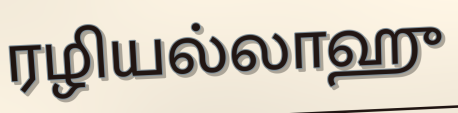
ரழியல்லாஹு